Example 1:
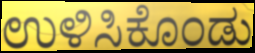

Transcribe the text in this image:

ಉಳಿಸಿಕೊಂಡು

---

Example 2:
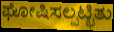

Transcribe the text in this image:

ಘೋಷಿಸಲ್ಪಟ್ಟಿತು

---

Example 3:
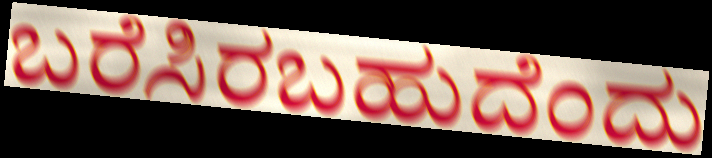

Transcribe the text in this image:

ಬರೆಸಿರಬಹುದೆಂದು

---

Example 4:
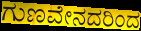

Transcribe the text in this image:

ಗುಣವೇನದರಿಂದ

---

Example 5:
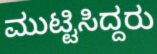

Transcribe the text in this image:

ಮುಟ್ಟಿಸಿದ್ದರು